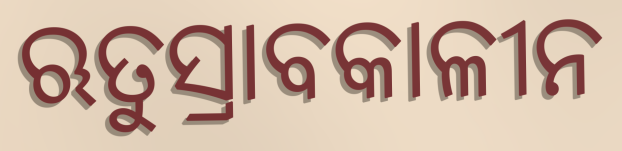
ଋତୁସ୍ରାବକାଳୀନ